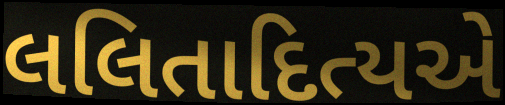
લલિતાદિત્યએ